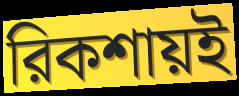
রিকশায়ই